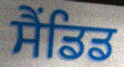
ਸੈਂਡਿਡ